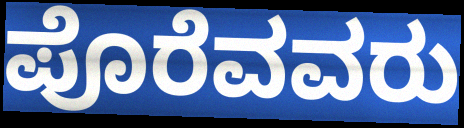
ಪೊರೆವವರು